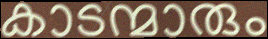
കാടന്മാരും